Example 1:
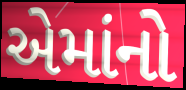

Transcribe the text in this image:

એમાંનો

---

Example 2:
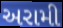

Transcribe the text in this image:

અરામી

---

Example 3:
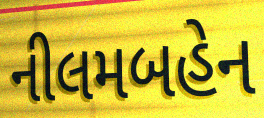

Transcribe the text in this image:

નીલમબહેન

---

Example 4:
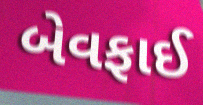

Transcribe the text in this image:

બેવફાઈ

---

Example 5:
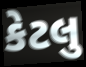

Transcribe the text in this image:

કેટલુ